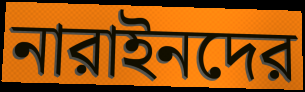
নারাইনদের